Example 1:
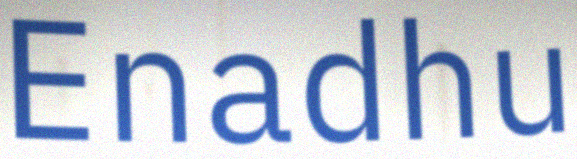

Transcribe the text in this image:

Enadhu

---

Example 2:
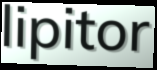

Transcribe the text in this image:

lipitor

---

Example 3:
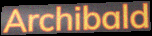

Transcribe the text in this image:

Archibald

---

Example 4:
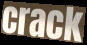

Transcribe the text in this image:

crack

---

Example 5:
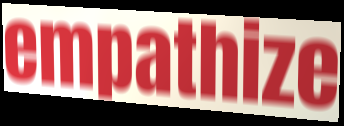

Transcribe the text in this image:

empathize